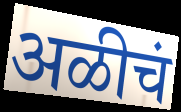
अळीचं